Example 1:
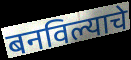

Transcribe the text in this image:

बनविल्याचे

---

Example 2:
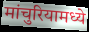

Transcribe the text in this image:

मांचुरियामध्ये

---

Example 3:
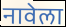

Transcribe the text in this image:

नावेला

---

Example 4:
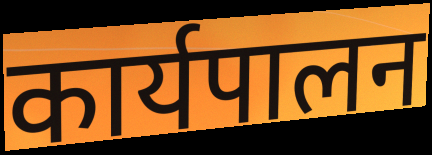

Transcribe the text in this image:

कार्यपालन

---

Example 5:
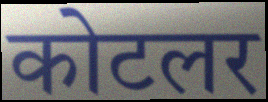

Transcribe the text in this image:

कोटलर